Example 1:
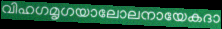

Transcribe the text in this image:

വിഹഗമൃഗയാലോലനായേകദാ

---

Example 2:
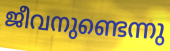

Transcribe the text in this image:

ജീവനുണ്ടെന്നു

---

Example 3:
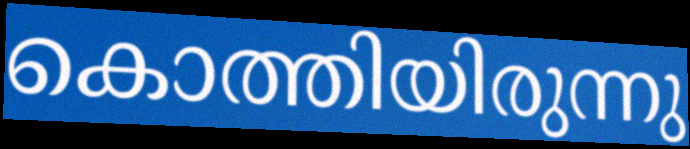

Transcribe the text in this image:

കൊത്തിയിരുന്നു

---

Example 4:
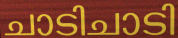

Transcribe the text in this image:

ചാടിചാടി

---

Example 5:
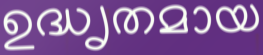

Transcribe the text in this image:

ഉദ്ധൃതമായ